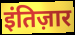
इंतिज़ार